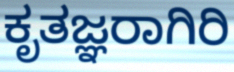
ಕೃತಜ್ಞರಾಗಿರಿ